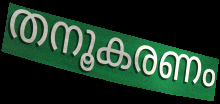
തനൂകരണം